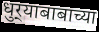
धुर्याबाबाच्या